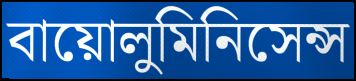
বায়োলুমিনিসেন্স